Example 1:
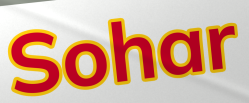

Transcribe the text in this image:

Sohar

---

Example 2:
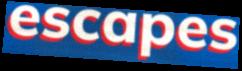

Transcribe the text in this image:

escapes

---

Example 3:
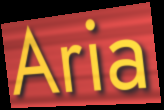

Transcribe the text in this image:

Aria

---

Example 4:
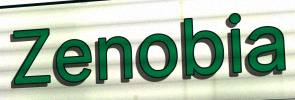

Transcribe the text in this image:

Zenobia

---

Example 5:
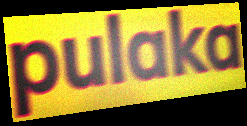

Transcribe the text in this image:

pulaka